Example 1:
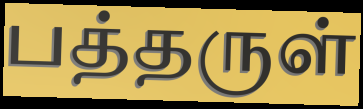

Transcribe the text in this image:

பத்தருள்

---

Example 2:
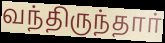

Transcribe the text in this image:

வந்திருந்தார்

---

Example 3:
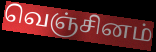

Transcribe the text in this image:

வெஞ்சினம்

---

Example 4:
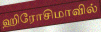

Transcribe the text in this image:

ஹிரோசிமாவில்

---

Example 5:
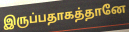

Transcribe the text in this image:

இருப்பதாகத்தானே